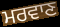
ਮਰਵਾਣ